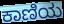
ಕಾಣಿಯ